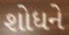
શોધને